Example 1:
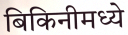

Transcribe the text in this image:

बिकिनीमध्ये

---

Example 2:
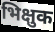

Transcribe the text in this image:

भिक्षुक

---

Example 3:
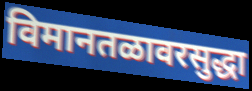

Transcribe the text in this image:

विमानतळावरसुद्धा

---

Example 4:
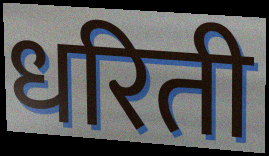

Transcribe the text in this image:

धरिती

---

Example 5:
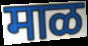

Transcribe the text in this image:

माळ